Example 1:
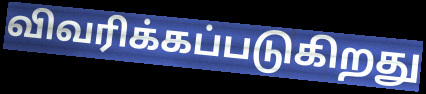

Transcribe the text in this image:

விவரிக்கப்படுகிறது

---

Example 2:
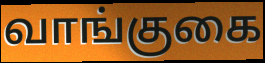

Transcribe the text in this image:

வாங்குகை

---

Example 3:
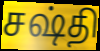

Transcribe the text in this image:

சஷ்தி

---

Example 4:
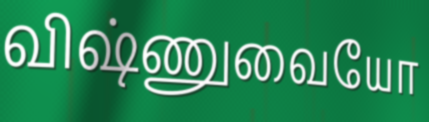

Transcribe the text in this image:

விஷ்ணுவையோ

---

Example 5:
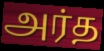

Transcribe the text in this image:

அர்த